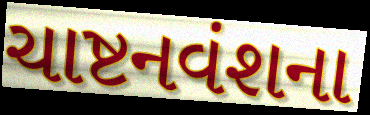
ચાષ્ટનવંશના